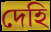
দেহি